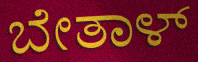
ಬೇತಾಳ್